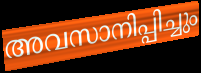
അവസാനിപ്പിച്ചും